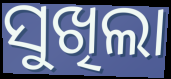
ସୁଖିଲା